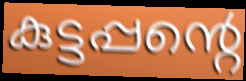
കുട്ടപ്പന്റെ